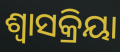
ଶ୍ବାସକ୍ରିୟା